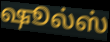
ஷூல்ஸ்